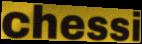
chessi